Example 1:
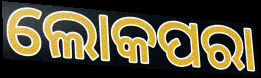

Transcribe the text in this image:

ଲୋକପରା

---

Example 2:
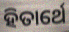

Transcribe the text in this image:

ହିତାର୍ଥେ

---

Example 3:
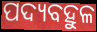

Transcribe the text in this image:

ପଦ୍ୟବହୁଳ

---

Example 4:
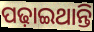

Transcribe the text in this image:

ପଢ଼ାଇଥାନ୍ତି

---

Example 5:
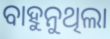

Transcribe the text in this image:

ବାହୁନୁଥିଲା